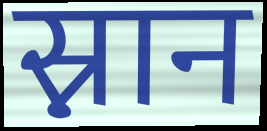
स्नान